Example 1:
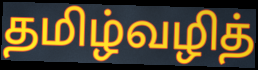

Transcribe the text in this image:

தமிழ்வழித்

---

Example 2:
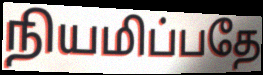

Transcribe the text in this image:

நியமிப்பதே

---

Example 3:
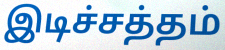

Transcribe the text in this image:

இடிச்சத்தம்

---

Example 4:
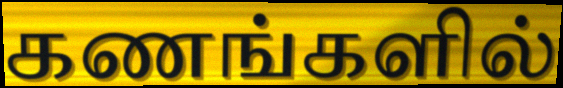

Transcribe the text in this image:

கணங்களில்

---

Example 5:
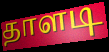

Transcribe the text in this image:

தாளடி